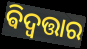
ଵିଦ୍ବତ୍ତାର